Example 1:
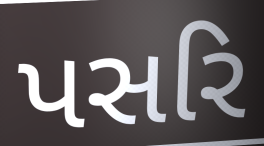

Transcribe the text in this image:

પસરિ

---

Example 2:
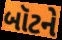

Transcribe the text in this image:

બૉટને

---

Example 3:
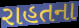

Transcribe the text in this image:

રાહતના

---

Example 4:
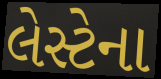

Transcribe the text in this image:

લેસ્ટેના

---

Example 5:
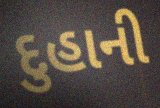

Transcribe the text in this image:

દુહાની